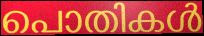
പൊതികൾ